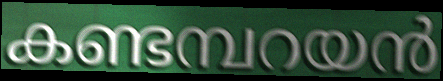
കണ്ടമ്പറയൻ